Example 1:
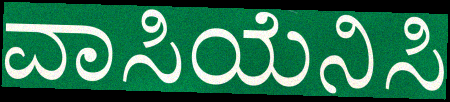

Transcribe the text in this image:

ವಾಸಿಯೆನಿಸಿ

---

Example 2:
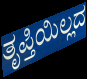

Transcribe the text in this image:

ತೃಪ್ತಿಯಿಲ್ಲದ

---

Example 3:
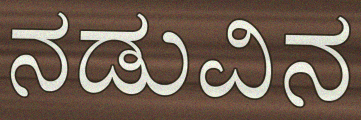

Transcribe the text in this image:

ನಡುವಿನ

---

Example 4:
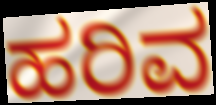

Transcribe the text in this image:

ಹರಿವ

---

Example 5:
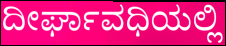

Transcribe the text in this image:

ದೀರ್ಘಾವಧಿಯಲ್ಲಿ